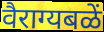
वैराग्यबळें